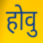
होवु